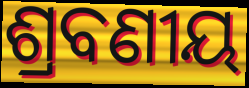
ଶ୍ରବଣୀୟ